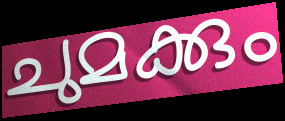
ചുമക്കും